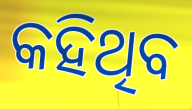
କହିଥିବ